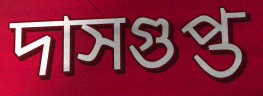
দাসগুপ্ত